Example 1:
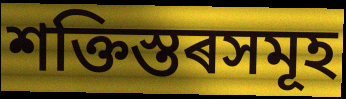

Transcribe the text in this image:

শক্তিস্তৰসমূহ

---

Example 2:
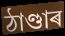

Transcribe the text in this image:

ঠাণ্ডাৰ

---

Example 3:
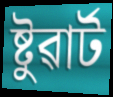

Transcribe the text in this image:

ষ্টুৱাৰ্ট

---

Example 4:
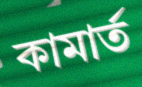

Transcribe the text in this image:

কামাৰ্ত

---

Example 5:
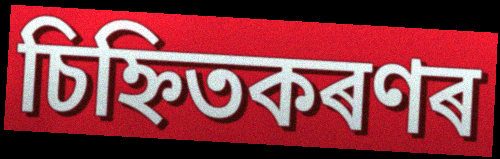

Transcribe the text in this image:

চিহ্নিতকৰণৰ